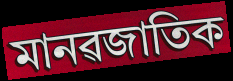
মানৱজাতিক